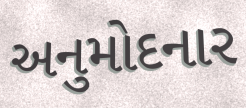
અનુમોદનાર